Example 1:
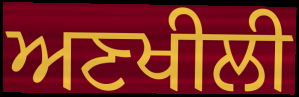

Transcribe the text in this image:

ਅਣਖੀਲੀ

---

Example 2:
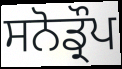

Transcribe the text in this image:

ਸਨੋਡ੍ਰੌਪ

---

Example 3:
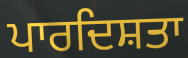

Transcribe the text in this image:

ਪਾਰਦਿਸ਼ਤਾ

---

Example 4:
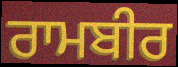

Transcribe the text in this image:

ਰਾਮਬੀਰ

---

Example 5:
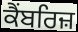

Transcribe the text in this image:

ਕੈਂਬਰਿਜ਼